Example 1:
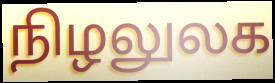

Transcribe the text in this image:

நிழலுலக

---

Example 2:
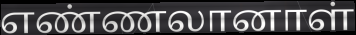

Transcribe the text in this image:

எண்ணலானாள்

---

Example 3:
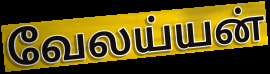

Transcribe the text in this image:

வேலய்யன்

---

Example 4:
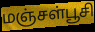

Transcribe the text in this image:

மஞ்சள்பூசி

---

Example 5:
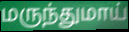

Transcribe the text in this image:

மருந்துமாய்